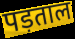
पड़ताल